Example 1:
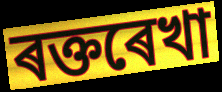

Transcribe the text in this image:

ৰক্তৰেখা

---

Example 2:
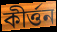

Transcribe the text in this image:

কীৰ্ত্তন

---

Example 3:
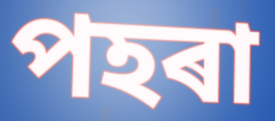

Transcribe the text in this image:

পহৰা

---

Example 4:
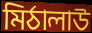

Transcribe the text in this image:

মিঠালাউ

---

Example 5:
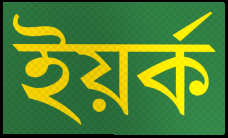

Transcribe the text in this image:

ইয়ৰ্ক